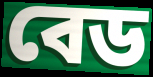
বেড